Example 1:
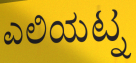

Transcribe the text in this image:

ಎಲಿಯಟ್ನ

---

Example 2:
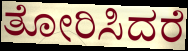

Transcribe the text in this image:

ತೋರಿಸಿದರೆ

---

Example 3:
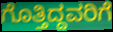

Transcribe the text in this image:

ಗೊತ್ತಿದ್ದವರಿಗೆ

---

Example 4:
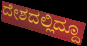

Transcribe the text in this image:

ದೇಶದಲ್ಲಿದ್ದೂ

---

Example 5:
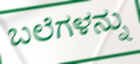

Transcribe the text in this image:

ಬಲೆಗಳನ್ನು